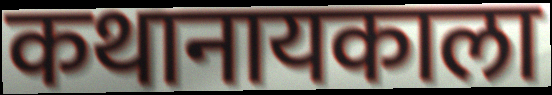
कथानायकाला